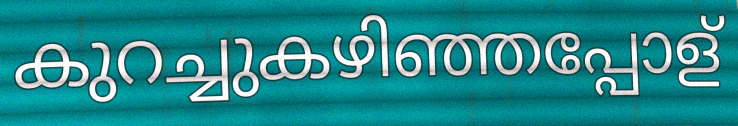
കുറച്ചുകഴിഞ്ഞപ്പോള്